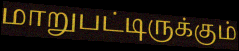
மாறுபட்டிருக்கும்